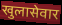
खुलासेवार